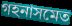
গহনাসমেত